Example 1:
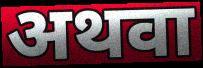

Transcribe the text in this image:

अथवा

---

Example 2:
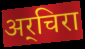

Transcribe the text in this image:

अर्चिरा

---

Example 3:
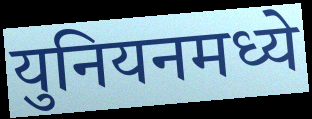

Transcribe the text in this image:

युनियनमध्ये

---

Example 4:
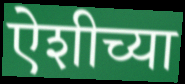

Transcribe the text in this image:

ऐशीच्या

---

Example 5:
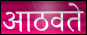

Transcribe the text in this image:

आठवते